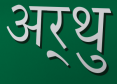
अर्थु